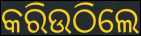
କରିଉଠିଲେ